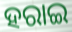
ହରାଇ